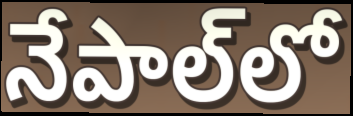
నేపాల్‌లో